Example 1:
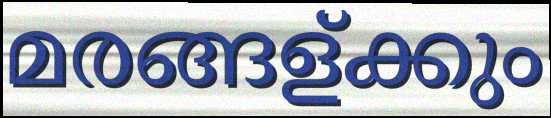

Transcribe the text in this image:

മരങ്ങള്ക്കും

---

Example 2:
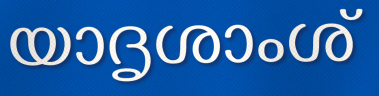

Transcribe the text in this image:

യാദൃശാംശ്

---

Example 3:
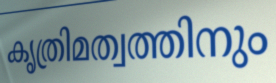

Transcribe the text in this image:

കൃത്രിമത്വത്തിനും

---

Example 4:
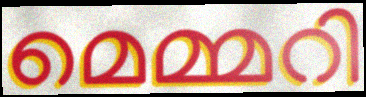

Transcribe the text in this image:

മെമ്മറി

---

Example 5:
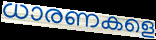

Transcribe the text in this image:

ധാരണകളെ